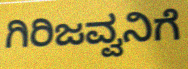
ಗಿರಿಜವ್ವನಿಗೆ